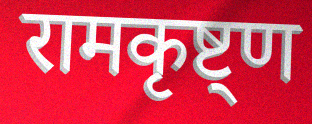
रामकृष्ट्ण